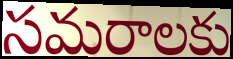
సమరాలకు